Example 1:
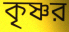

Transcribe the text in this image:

কৃষ্ণর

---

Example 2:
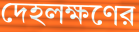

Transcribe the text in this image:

দেহলক্ষণের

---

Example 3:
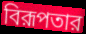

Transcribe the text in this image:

বিরূপতার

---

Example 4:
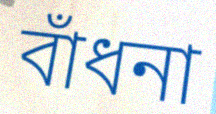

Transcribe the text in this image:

বাঁধনা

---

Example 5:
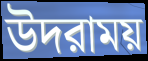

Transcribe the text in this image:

উদরাময়